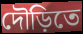
দৌড়িতে